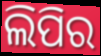
ଲିପିର